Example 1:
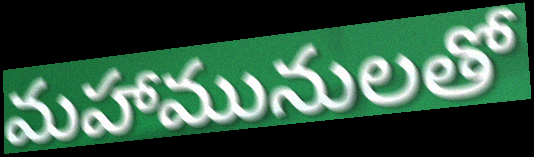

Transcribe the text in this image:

మహామునులతో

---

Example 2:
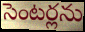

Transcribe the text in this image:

సెంటర్లను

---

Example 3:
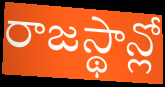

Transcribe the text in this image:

రాజస్థాన్లో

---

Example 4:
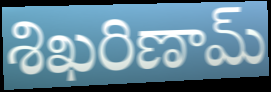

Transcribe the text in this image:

శిఖరిణామ్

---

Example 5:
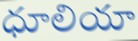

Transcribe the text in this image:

ధూలియా